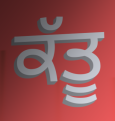
ਕੱਤੂ